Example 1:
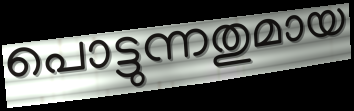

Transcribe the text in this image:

പൊട്ടുന്നതുമായ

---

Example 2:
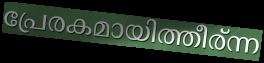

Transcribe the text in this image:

പ്രേരകമായിത്തീര്ന്ന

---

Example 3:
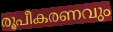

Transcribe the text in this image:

രൂപീകരണവും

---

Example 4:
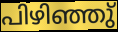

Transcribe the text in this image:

പിഴിഞ്ഞു്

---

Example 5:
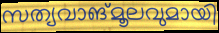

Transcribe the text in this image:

സത്യവാങ്മൂലവുമായി